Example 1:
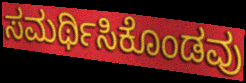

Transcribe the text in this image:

ಸಮರ್ಥಿಸಿಕೊಂಡವು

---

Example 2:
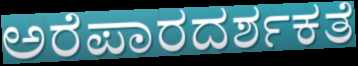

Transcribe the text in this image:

ಅರೆಪಾರದರ್ಶಕತೆ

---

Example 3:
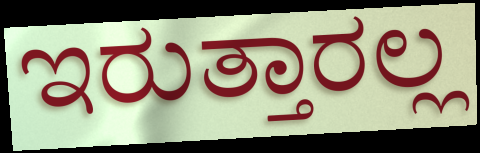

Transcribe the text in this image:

ಇರುತ್ತಾರಲ್ಲ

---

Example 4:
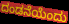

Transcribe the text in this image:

ದಂಡನೆಯೆಂದು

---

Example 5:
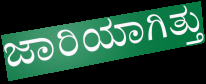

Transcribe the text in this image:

ಜಾರಿಯಾಗಿತ್ತು